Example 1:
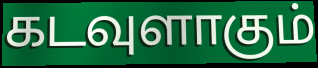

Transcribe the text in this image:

கடவுளாகும்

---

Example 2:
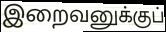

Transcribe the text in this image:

இறைவனுக்குப்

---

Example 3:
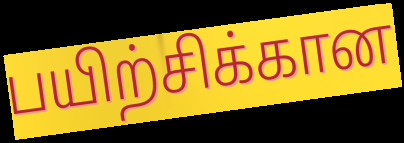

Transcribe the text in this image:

பயிற்சிக்கான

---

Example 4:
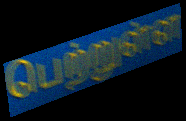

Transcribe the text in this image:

பெற்றுள்ள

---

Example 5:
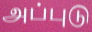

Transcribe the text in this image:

அப்புடு